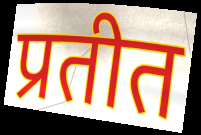
प्रतीत